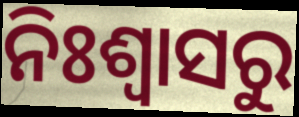
ନିଃଶ୍ଵାସରୁ